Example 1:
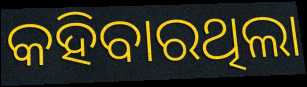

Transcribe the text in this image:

କହିବାରଥିଲା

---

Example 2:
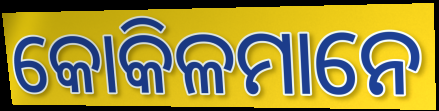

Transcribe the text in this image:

କୋକିଳମାନେ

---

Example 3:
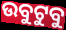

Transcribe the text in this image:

ଉବୁଟୁବୁ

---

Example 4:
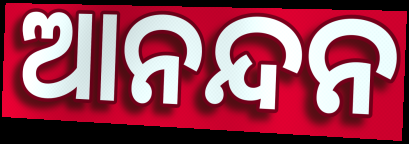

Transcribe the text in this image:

ଆନନ୍ଦନ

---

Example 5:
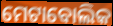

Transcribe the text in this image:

ମେଟାବୋଲିକ